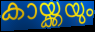
കായ്ക്കയും